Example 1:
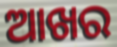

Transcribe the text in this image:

ଆଖର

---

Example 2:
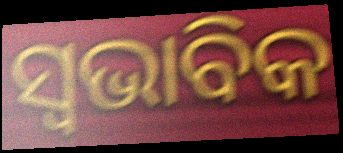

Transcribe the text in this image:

ସ୍ୱଭାବିକ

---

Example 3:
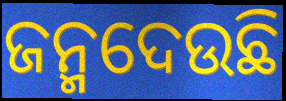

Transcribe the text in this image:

ଜନ୍ମଦେଉଛି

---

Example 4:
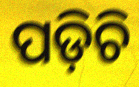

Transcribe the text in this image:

ପଡ଼ିଚି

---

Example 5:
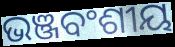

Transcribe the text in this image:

ଭଞ୍ଜବଂଶୀୟ